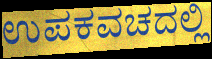
ಉಪಕವಚದಲ್ಲಿ